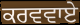
ਕਰਵਵਾਏ